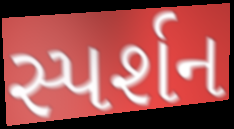
સ્પર્શન